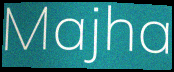
Majha